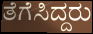
ತೆಗೆಸಿದ್ದರು